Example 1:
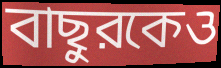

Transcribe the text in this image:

বাছুরকেও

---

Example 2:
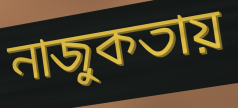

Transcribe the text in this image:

নাজুকতায়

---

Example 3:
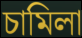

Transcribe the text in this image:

চামিলা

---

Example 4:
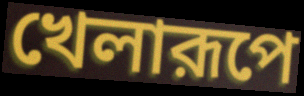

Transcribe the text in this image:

খেলারূপে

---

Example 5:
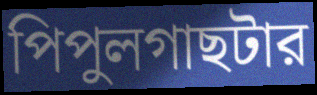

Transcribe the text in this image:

পিপুলগাছটার